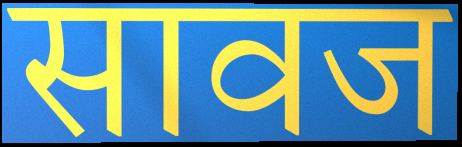
सावज